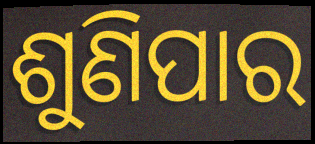
ଶୁଣିପାର